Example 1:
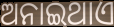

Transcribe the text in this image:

ଅନାଇଥାଏ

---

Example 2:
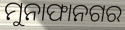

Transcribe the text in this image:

ମୁନାଫାନଗର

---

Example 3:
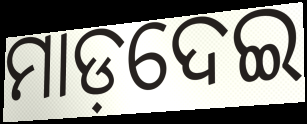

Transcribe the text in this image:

ମାଡ଼ଦେଇ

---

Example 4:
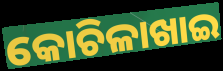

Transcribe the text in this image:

କୋଚିଳାଖାଇ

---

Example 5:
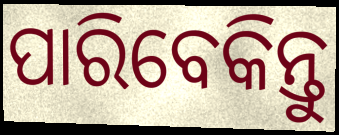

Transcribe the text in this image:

ପାରିବେକିନ୍ତୁ